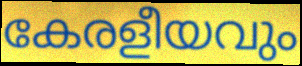
കേരളീയവും